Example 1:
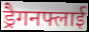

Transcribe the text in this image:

ड्रैगनफ्लाई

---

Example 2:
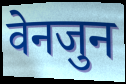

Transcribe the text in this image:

वेनजुन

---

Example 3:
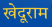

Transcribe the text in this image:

खेदूराम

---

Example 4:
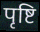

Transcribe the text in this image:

पृष्टि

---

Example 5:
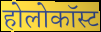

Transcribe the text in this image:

होलोकॉस्ट